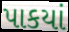
પાકયાં